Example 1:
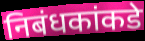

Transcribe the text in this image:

निबंधकांकडे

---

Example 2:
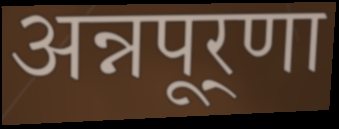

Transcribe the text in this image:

अन्नपूर्णा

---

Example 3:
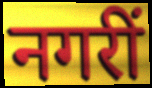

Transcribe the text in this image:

नगरीं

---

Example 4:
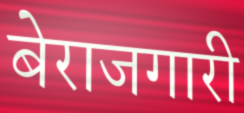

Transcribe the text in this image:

बेराजगारी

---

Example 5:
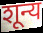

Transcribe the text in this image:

शून्य